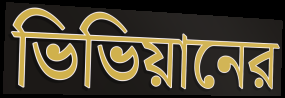
ভিভিয়ানের